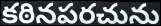
కఠినపరచును